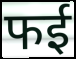
फई